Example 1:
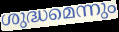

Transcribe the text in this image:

ശുദ്ധമെന്നും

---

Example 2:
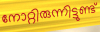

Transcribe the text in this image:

നോറ്റിരുന്നിട്ടുണ്ട്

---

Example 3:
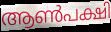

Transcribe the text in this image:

ആൺപക്ഷി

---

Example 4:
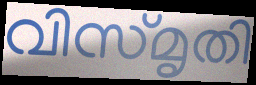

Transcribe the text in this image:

വിസ്മൃതി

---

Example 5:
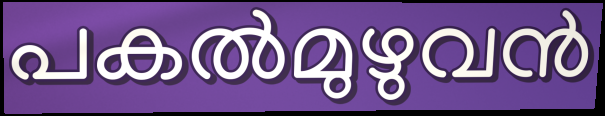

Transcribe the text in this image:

പകൽമുഴുവൻ